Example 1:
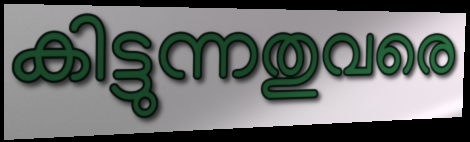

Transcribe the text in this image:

കിട്ടുന്നതുവരെ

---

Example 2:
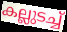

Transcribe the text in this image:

കല്ലുടച്ച്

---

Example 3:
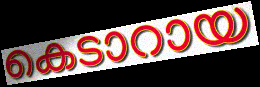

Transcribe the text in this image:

കെടാറായ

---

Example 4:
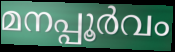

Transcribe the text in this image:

മനപ്പൂർവം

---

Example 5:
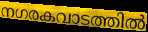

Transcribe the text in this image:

നഗരകവാടത്തിൽ